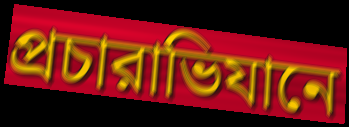
প্রচারাভিযানে